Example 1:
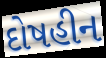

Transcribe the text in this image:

દોષહીન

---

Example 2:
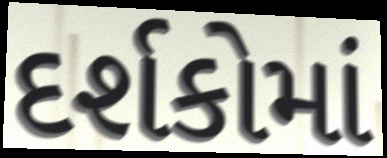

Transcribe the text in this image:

દર્શકોમાં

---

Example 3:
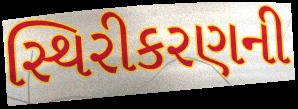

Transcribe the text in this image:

સ્થિરીકરણની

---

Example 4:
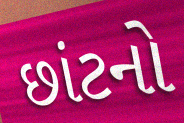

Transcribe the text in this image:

છાંટનો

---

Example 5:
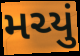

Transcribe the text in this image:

મચ્યું